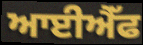
ਆਈਐੱਫ